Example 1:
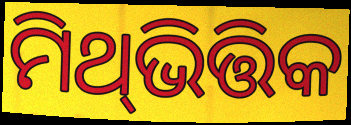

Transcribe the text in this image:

ମିଥ୍‍ଭିତ୍ତିକ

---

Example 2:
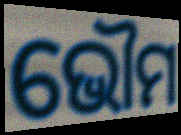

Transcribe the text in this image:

ଭୌମ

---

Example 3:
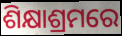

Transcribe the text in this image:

ଶିକ୍ଷାଶ୍ରମରେ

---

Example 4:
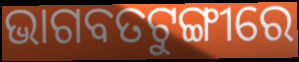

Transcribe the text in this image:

ଭାଗବତଟୁଙ୍ଗୀରେ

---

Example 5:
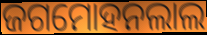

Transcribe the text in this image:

ଜଗମୋହନଲାଲ